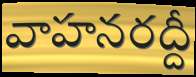
వాహనరద్దీ